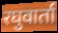
रघुवार्ता